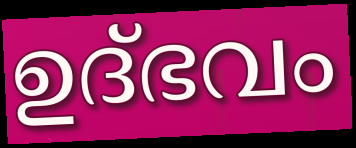
ഉദ്ഭവം